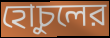
হোচুলের